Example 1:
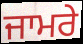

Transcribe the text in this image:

ਜਾਮਰੇ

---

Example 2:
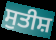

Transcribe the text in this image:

ਸੁਤੀਸ਼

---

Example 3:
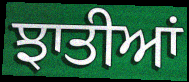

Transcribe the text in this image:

ਝਾਤੀਆਂ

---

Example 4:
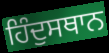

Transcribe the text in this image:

ਹਿੰਦੁਸਥਾਨ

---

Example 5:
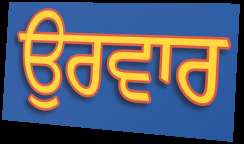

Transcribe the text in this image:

ਉਰਵਾਰ